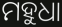
ମହୁଧା